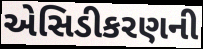
એસિડીકરણની